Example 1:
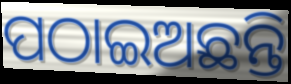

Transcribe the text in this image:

ପଠାଇଅଛନ୍ତି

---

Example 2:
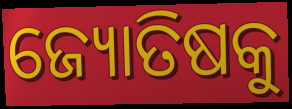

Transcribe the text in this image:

ଜ୍ୟୋତିଷକୁ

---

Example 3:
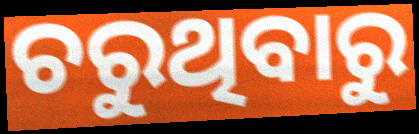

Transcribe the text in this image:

ଚରୁଥିବାରୁ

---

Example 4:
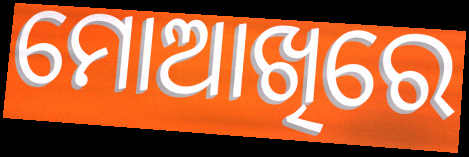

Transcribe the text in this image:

ମୋଆଖିରେ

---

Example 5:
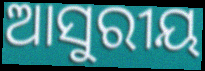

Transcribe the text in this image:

ଆସୁରୀୟ